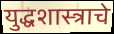
युद्धशास्त्राचे